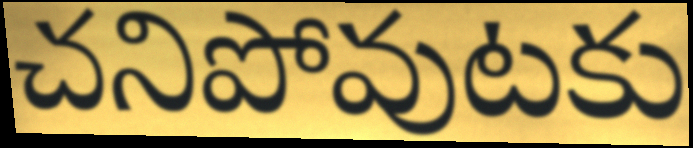
చనిపోవుటకు